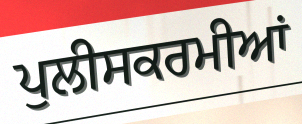
ਪੁਲੀਸਕਰਮੀਆਂ